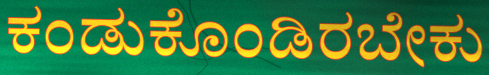
ಕಂಡುಕೊಂಡಿರಬೇಕು